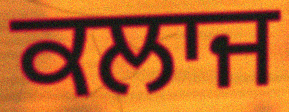
ਕਲਾਜ